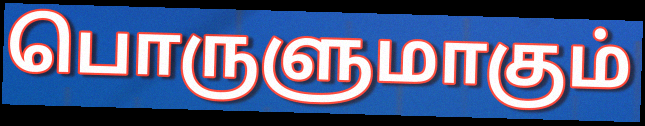
பொருளுமாகும்